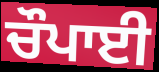
ਚੌਪਾਈ